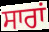
ਸਾਰਾਂ